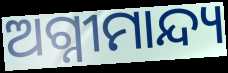
ଅଗ୍ନୀମାନ୍ଦ୍ୟ